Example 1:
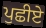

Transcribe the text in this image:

ਪੁਛੀਏ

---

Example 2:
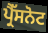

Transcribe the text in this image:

ਪ੍ਰੈੱਸਨੋਟ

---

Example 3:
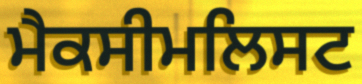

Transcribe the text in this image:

ਮੈਕਸੀਮਲਿਸਟ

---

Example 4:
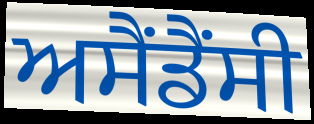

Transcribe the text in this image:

ਅਸੈਂਡੈਂਸੀ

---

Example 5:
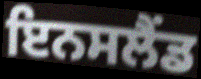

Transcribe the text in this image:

ਇਨਸਲੈਂਡ